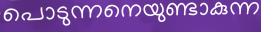
പൊടുന്നനെയുണ്ടാകുന്ന